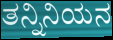
ತನ್ನಿನಿಯನ